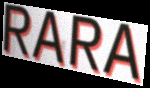
RARA